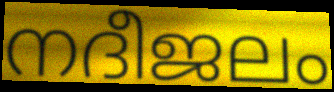
നദീജലം